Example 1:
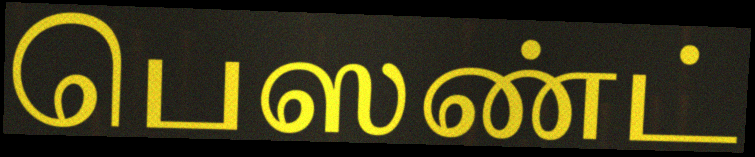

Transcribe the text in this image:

பெஸண்ட்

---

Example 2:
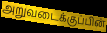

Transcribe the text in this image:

அறுவடைக்குப்பின்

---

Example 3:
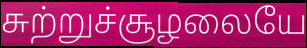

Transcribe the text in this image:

சுற்றுச்சூழலையே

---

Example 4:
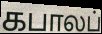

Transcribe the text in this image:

கபாலப்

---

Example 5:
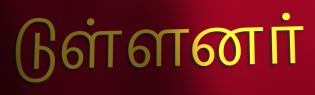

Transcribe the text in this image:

டுள்ளனர்